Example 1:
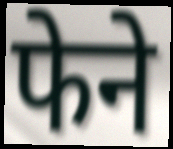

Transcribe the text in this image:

फेने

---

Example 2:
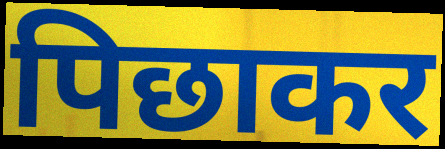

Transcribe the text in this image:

पिछाकर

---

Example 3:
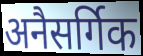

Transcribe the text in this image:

अनैसर्गिक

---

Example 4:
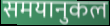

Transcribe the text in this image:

समयानुकल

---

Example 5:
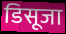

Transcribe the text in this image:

डिसूजा